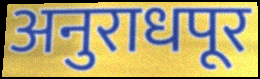
अनुराधपूर